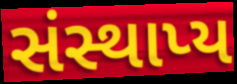
સંસ્થાપ્ય